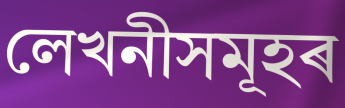
লেখনীসমূহৰ